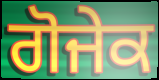
ਗੋਜੇਕ